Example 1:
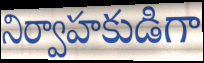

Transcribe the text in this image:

నిర్వాహకుడిగా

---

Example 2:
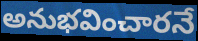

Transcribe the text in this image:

అనుభవించారనే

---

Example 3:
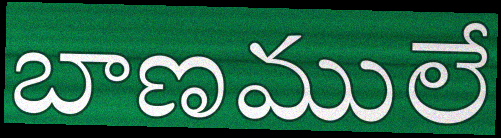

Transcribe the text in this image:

బాణములే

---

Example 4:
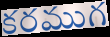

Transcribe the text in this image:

కరముగ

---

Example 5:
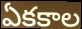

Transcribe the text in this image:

ఏకకాల